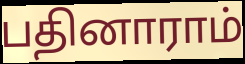
பதினாராம்